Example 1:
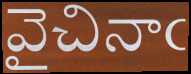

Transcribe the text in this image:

వైచినాఁ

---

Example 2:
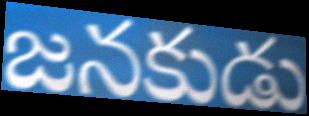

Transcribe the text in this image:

జనకుడు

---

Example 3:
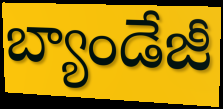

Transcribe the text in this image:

బ్యాండేజీ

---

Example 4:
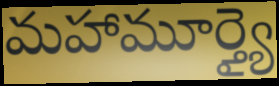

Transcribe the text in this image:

మహామూర్త్యై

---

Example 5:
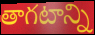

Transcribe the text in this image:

తాగటాన్ని